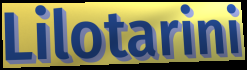
Lilotarini